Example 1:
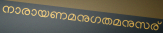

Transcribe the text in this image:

നാരായണമനുഗതമനുസര്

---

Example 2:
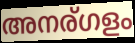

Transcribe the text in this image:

അനര്ഗളം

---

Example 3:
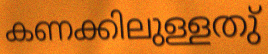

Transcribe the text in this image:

കണക്കിലുള്ളതു്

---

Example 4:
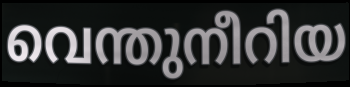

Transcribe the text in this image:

വെന്തുനീറിയ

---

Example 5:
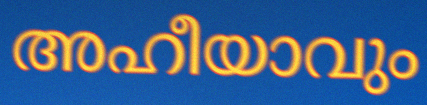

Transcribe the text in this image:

അഹീയാവും